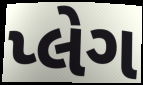
પ્લેગ